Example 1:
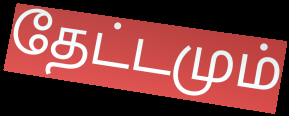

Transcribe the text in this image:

தேட்டமும்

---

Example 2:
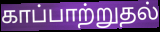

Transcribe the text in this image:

காப்பாற்றுதல்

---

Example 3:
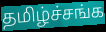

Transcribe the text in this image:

தமிழ்ச்சங்க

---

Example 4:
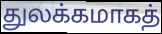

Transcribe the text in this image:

துலக்கமாகத்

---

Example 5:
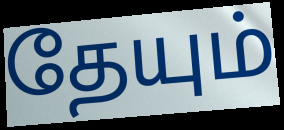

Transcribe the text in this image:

தேயும்